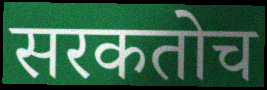
सरकतोच